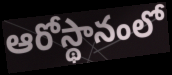
ఆరోస్థానంలో